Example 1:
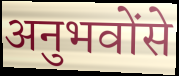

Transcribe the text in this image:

अनुभवोंसे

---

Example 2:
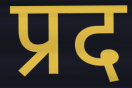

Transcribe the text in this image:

प्रद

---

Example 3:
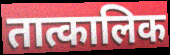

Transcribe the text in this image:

तात्कालिक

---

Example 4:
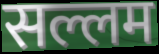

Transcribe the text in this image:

सल्‍लम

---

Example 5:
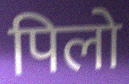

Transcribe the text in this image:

पिलो